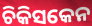
ଚିକିସକେନ